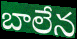
బాలేన